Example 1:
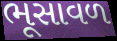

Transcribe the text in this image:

ભૂસાવળ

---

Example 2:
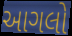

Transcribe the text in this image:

આગલો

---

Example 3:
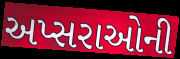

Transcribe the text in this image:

અપ્સરાઓની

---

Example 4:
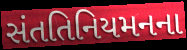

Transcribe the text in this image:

સંતતિનિયમનના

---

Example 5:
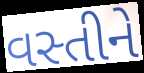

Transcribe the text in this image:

વસ્તીને